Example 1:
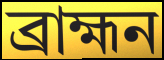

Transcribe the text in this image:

ব্ৰাহ্মন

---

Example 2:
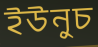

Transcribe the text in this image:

ইউনুচ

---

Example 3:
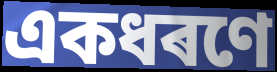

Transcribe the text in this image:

একধৰণে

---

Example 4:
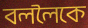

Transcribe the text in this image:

বললৈকে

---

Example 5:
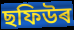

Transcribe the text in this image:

ছফিউৰ